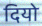
दियो